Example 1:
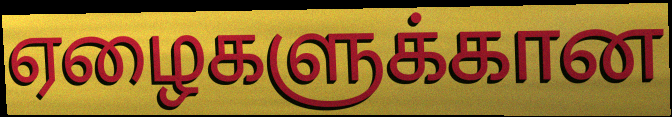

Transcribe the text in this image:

ஏழைகளுக்கான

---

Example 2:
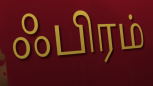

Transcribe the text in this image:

ஃபிரம்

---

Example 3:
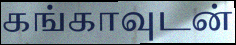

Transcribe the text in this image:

கங்காவுடன்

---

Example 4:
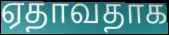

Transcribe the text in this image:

ஏதாவதாக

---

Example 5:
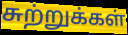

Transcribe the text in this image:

சுற்றுக்கள்